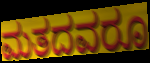
ಮತದವರೂ